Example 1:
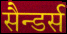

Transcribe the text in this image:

सैन्डर्स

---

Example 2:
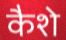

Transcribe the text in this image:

कैशे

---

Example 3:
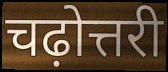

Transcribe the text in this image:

चढ़ोत्तरी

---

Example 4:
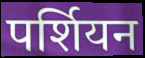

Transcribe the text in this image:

पर्शियन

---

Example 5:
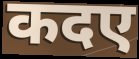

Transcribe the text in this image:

कदए